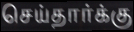
செய்தார்க்கு